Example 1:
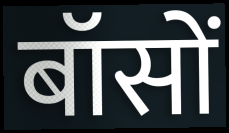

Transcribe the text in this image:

बॉसों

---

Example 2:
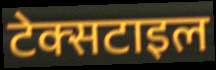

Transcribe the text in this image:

टेक्‍सटाइल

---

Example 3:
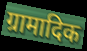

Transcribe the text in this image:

ग्रामादिक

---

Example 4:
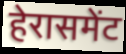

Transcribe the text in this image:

हेरासमेंट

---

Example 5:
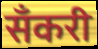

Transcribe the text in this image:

सँकरी